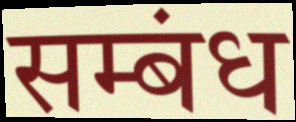
सम्बंध